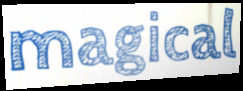
magical